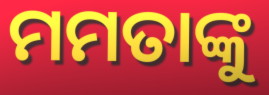
ମମତାଙ୍କୁ